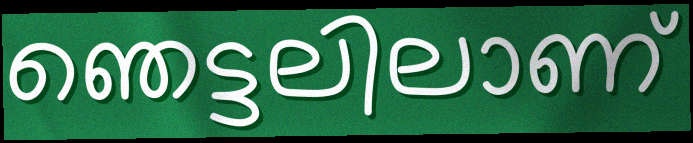
ഞെട്ടലിലാണ്